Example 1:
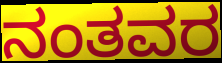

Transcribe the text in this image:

ನಂತವರ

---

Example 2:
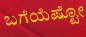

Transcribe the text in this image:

ಬಗೆಯೆಷ್ಟೋ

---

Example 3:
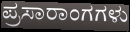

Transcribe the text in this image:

ಪ್ರಸಾರಾಂಗಗಳು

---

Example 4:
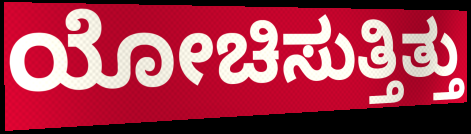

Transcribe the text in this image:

ಯೋಚಿಸುತ್ತಿತ್ತು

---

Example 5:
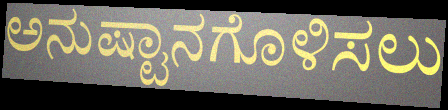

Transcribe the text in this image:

ಅನುಷ್ಟಾನಗೊಳಿಸಲು